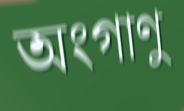
অংগাণু